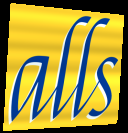
alls